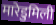
मारेडुमिली